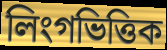
লিংগভিত্তিক